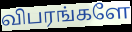
விபரங்களே